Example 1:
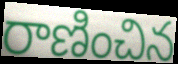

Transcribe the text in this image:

రాణించిన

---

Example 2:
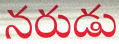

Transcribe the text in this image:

నరుడు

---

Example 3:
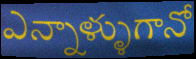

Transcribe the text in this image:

ఎన్నాళ్ళుగానో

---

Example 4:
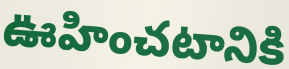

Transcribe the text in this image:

ఊహించటానికి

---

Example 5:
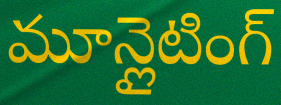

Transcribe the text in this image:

మూన్లైటింగ్